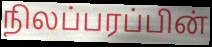
நிலப்பரப்பின்